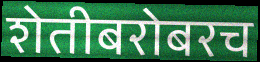
शेतीबरोबरच